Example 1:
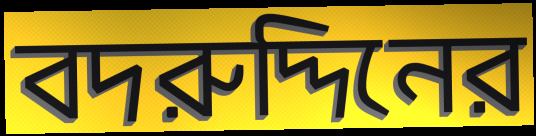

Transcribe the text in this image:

বদরুদ্দিনের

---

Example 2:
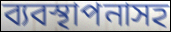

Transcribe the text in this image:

ব্যবস্থাপনাসহ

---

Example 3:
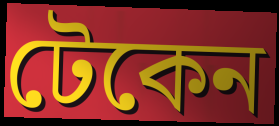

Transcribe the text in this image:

টেকেন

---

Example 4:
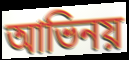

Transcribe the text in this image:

আভিনয়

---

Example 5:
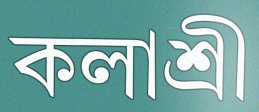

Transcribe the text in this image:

কলাশ্রী